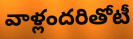
వాళ్లందరితోటీ